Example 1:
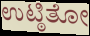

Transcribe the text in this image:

ಉಟ್ಠಿತೋ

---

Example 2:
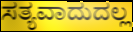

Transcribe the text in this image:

ಸತ್ಯವಾದುದಲ್ಲ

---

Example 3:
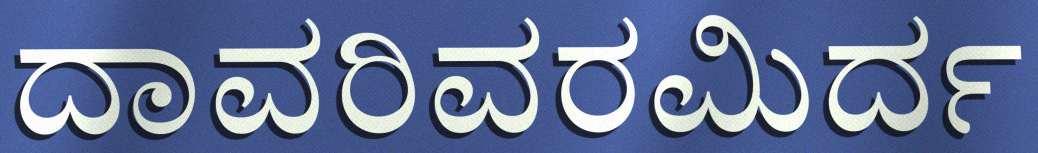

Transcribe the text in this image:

ದಾವರಿವರಮಿರ್ದ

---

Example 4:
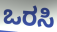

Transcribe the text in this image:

ಒರಸಿ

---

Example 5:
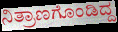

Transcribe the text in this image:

ನಿತ್ರಾಣಗೊಂಡಿದ್ದ